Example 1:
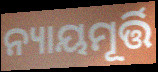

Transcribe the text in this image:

ନ୍ୟାୟମୂର୍ତ୍ତି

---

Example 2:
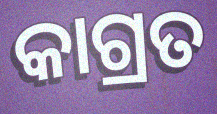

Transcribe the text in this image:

କାଗ୍ରତ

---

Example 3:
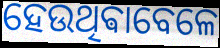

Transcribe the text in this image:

ହେଉଥିଵାବେଳେ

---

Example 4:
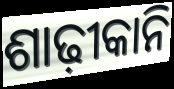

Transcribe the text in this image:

ଶାଢ଼ୀକାନି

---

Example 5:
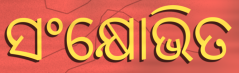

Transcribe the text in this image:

ସଂକ୍ଷୋଭିତ